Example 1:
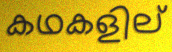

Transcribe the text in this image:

കഥകളില്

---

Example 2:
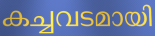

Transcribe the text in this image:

കച്ചവടമായി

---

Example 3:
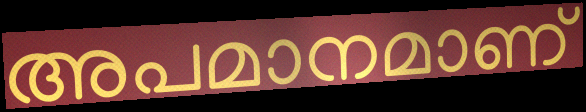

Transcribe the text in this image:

അപമാനമാണ്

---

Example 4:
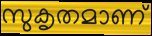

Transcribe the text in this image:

സുകൃതമാണ്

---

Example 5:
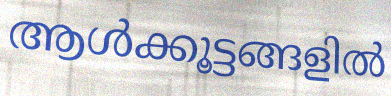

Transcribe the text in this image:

ആൾക്കൂട്ടങ്ങളിൽ